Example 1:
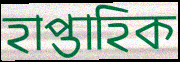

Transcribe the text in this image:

হাপ্তাহিক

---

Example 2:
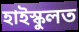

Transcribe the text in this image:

হাইস্কুলত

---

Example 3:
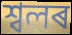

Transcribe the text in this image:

শ্বলৰ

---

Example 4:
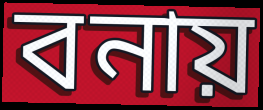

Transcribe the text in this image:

বনায়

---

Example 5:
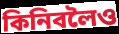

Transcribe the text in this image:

কিনিবলৈও